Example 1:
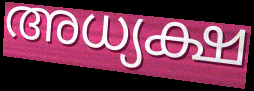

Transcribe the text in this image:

അധ്യക്ഷ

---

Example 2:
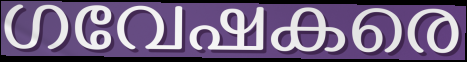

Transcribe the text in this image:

ഗവേഷകരെ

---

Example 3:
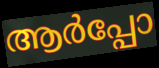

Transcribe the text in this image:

ആർപ്പോ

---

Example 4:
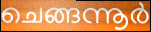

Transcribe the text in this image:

ചെങ്ങന്നൂർ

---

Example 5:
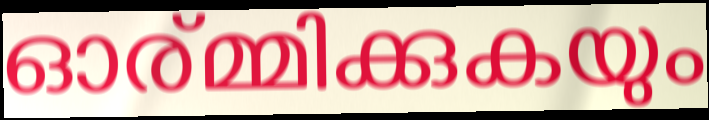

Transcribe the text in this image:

ഓര്മ്മിക്കുകയും